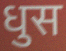
धुस